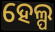
ହେଲ୍ପ